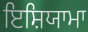
ਇਸ਼ਿਯਾਮਾ